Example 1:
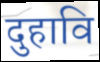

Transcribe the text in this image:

दुहावि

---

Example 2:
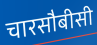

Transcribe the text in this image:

चारसौबीसी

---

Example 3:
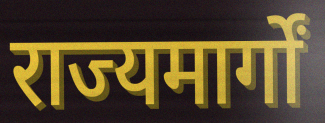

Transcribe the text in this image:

राज्यमार्गों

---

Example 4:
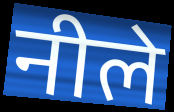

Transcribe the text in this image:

नीले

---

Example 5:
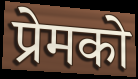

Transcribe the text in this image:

प्रेमको